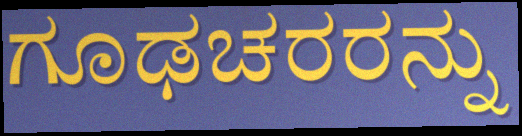
ಗೂಢಚರರನ್ನು